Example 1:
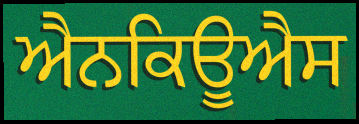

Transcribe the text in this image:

ਐਨਕਿਊਐਸ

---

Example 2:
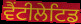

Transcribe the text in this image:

ਵੈਂਟੀਲੇਟਿਡ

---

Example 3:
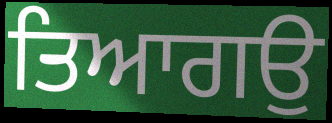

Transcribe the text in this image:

ਤਿਆਗਉ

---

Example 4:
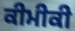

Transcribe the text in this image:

ਕੀਮੀਕੀ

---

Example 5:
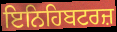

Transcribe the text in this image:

ਇਨਿਹਿਬਟਰਜ਼